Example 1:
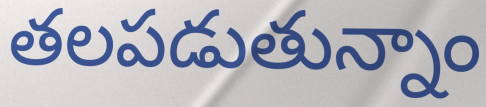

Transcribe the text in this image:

తలపడుతున్నాం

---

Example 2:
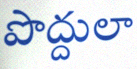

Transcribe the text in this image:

పొద్దులా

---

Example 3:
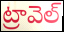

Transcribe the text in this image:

ట్రావెల్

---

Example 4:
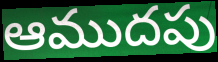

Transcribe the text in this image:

ఆముదపు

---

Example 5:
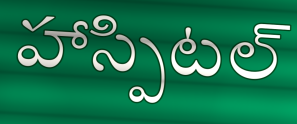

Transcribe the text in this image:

హాస్పిటల్